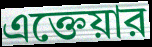
এক্তেয়ার